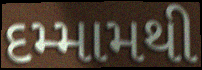
દમ્મામથી